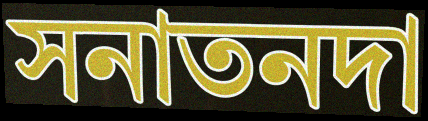
সনাতনদা